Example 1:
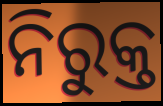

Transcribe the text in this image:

ନିରୁକ୍ତ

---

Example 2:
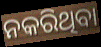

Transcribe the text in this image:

ନକରିଥିବା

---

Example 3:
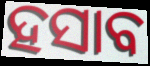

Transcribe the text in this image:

ହସାବ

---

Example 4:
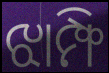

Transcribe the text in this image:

ଝାମ୍ଫି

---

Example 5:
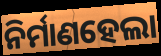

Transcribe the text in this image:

ନିର୍ମାଣହେଲା